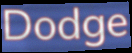
Dodge